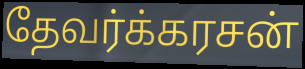
தேவர்க்கரசன்